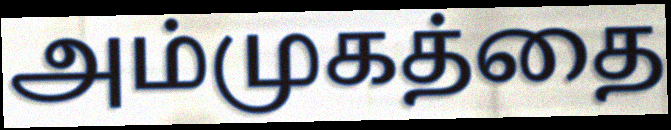
அம்முகத்தை